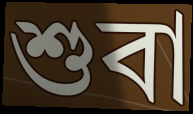
শুবা